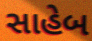
સાહેબ